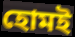
হোমই